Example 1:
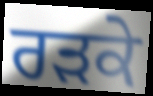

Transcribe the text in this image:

ਰੜਕੇ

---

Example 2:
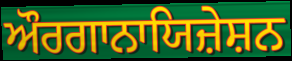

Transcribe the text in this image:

ਔਰਗਾਨਾਯਿਜ਼ੇਸ਼ਨ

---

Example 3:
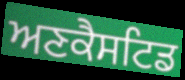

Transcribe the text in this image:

ਅਣਕੈਸਟਿਡ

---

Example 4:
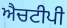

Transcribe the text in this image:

ਐਚਟੀਪੀ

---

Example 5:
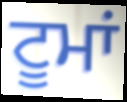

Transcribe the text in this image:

ਟੂਮਾਂ